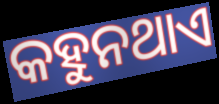
କହୁନଥାଏ